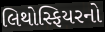
લિથોસ્ફિયરનો